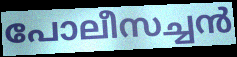
പോലീസച്ചൻ